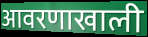
आवरणाखाली